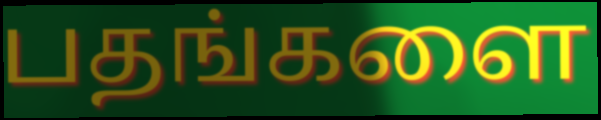
பதங்களை